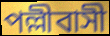
পল্লীবাসী